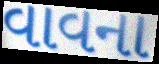
વાવના